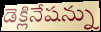
డెక్లినేషన్ను